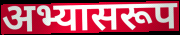
अभ्यासरूप